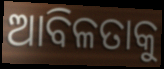
ଆବିଳତାକୁ